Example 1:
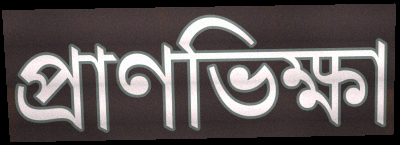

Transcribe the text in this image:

প্রাণভিক্ষা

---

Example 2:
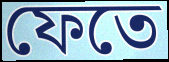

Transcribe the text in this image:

ফেতে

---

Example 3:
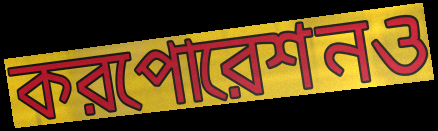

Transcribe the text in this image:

করপোরেশনও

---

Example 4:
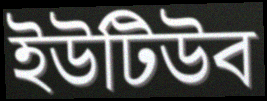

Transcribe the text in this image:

ইউটিউব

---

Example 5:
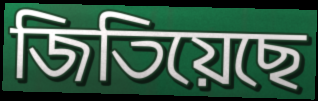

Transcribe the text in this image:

জিতিয়েছে